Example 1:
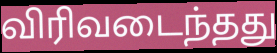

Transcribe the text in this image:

விரிவடைந்தது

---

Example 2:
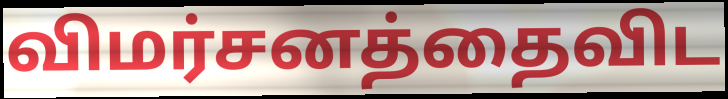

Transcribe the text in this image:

விமர்சனத்தைவிட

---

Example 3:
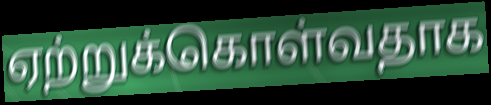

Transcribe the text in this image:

ஏற்றுக்கொள்வதாக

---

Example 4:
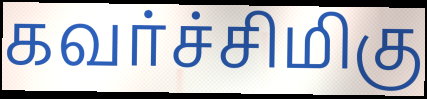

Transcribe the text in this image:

கவர்ச்சிமிகு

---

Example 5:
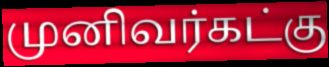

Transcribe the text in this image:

முனிவர்கட்கு